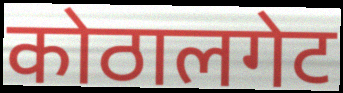
कोठालगेट